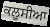
ਕਲੂਸੀਆ